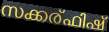
സക്കര്ഫിഷ്